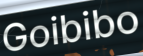
Goibibo